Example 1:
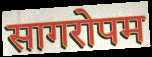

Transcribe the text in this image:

सागरोपम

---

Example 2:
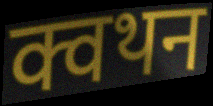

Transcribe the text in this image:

क्वथन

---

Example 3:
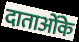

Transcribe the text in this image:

दाताओंके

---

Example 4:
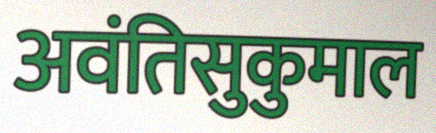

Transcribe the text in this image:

अवंतिसुकुमाल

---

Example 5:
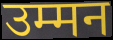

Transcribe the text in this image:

उम्मन